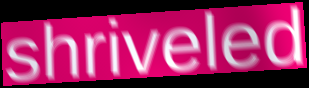
shriveled